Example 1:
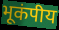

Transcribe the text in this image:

भूकंपीय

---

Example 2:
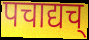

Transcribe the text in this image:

पचाद्यच्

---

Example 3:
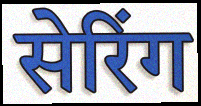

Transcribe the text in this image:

सेरिंग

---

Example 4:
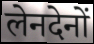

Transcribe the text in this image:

लेनदेनों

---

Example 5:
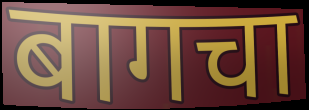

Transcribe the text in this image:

बागचा